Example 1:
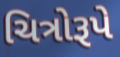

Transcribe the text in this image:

ચિત્રોરૂપે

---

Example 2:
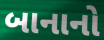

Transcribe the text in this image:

બાનાનો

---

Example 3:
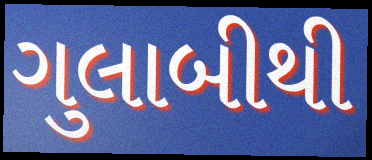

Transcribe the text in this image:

ગુલાબીથી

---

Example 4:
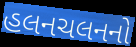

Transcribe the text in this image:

હલનચલનનો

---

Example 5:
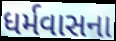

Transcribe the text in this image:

ધર્મવાસના